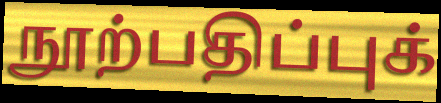
நூற்பதிப்புக்